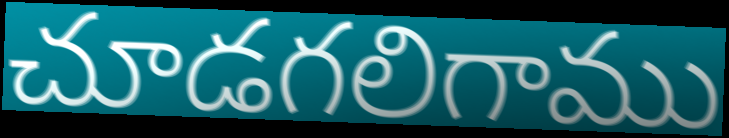
చూడగలిగాము